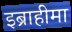
इब्राहीमा